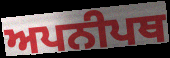
ਅਪਨੀਪਥ